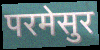
परमेसुर